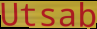
Utsab